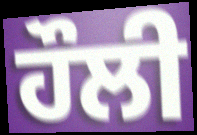
ਹੌਲੀ